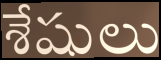
శేషులు